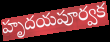
హృదయపూర్వక